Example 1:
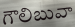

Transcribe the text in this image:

గౌలిబువా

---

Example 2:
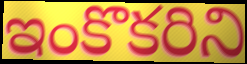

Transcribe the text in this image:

ఇంకొకరిని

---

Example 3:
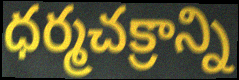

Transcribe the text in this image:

ధర్మచక్రాన్ని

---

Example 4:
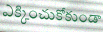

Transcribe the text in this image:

ఎక్కించుకోకుండా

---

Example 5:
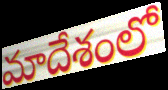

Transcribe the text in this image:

మాదేశంలో